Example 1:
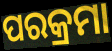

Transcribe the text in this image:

ପରକ୍ରମା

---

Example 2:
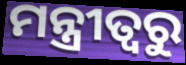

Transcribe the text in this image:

ମନ୍ତ୍ରୀତ୍ୱରୁ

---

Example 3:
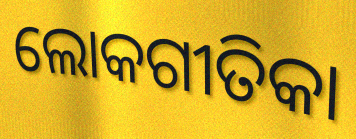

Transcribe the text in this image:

ଲୋକଗୀତିକା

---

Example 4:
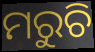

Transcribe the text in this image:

ମରୁଚି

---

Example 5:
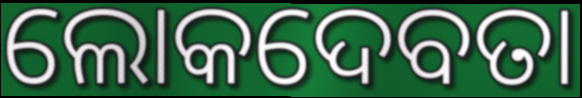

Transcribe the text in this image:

ଲୋକଦେବତା